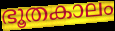
ഭൂതകാലം